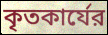
কৃতকার্যের